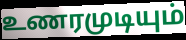
உணரமுடியும்